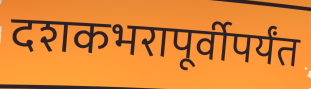
दशकभरापूर्वीपर्यंत